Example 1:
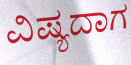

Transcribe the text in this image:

ವಿಷ್ಯದಾಗ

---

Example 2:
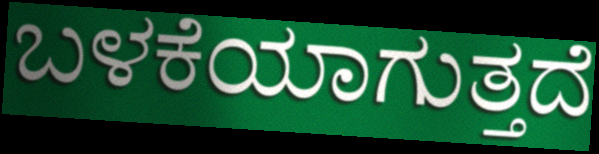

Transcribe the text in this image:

ಬಳಕೆಯಾಗುತ್ತದೆ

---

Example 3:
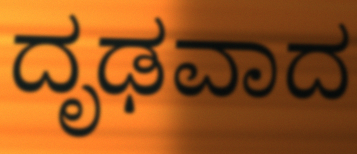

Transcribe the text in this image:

ದೃಢವಾದ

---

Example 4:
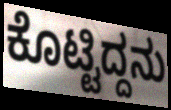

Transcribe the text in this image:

ಕೊಟ್ಟಿದ್ದನು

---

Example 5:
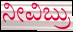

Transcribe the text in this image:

ನೀವಿಬ್ರು